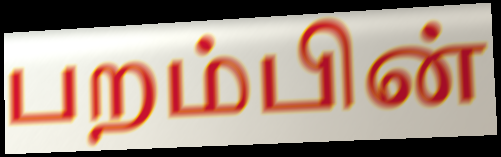
பறம்பின்